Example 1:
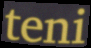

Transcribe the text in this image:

teni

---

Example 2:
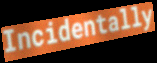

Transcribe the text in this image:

Incidentally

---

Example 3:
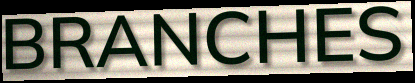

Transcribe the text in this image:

BRANCHES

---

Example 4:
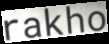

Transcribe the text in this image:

rakho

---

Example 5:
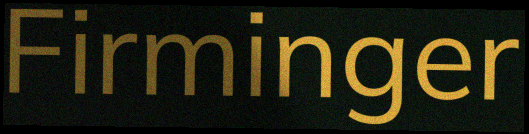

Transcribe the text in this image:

Firminger